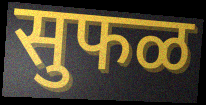
सुफळ